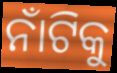
ନାଁଟିକୁ